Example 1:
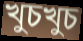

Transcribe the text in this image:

খুচখুচ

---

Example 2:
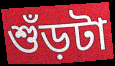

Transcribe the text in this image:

শুঁড়টা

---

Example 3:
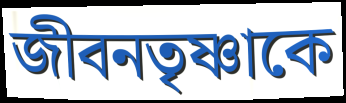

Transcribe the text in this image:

জীবনতৃষ্ণাকে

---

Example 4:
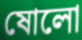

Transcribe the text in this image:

ষোলো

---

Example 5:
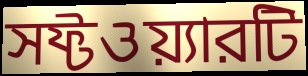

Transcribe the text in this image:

সফ্টওয়্যারটি